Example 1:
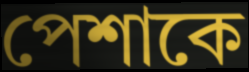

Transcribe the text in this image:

পেশাকে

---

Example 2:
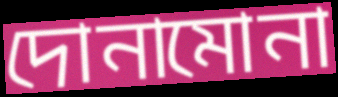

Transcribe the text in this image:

দোনামোনা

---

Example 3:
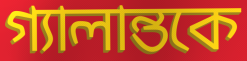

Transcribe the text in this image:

গ্যালান্তকে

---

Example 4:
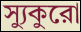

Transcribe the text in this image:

স্যুকুরো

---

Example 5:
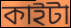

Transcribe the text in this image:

কাইটা